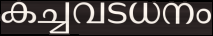
കച്ചവടധനം